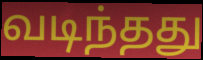
வடிந்தது